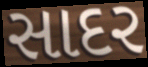
સાદર